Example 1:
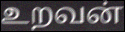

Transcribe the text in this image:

உறவன்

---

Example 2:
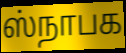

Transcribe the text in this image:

ஸ்நாபக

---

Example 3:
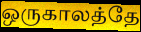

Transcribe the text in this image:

ஒருகாலத்தே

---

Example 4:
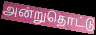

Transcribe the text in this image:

அன்றுதொட்டு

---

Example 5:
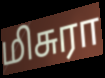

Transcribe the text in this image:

மிசுரா